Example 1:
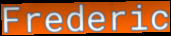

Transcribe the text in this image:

Frederic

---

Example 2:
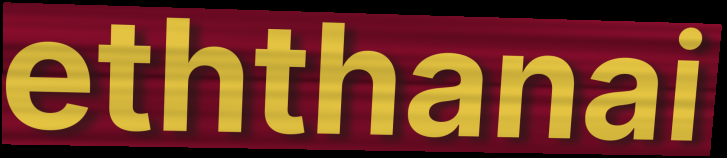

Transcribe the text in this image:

eththanai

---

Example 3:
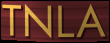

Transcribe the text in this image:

TNLA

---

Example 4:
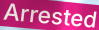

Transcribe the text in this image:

Arrested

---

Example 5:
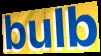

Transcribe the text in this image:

bulb